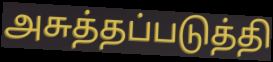
அசுத்தப்படுத்தி